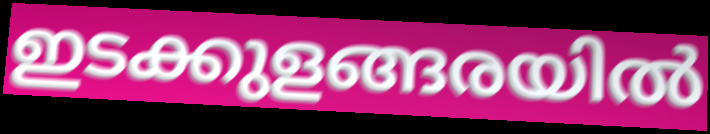
ഇടക്കുളങ്ങരയിൽ